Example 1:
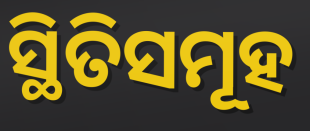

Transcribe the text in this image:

ସ୍ଥିତିସମୂହ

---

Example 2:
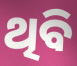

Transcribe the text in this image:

ଥିବି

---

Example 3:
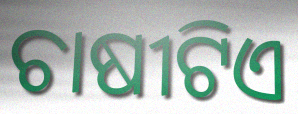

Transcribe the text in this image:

ଚାଷୀଟିଏ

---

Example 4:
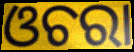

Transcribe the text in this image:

ଓଚରା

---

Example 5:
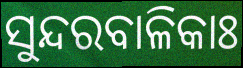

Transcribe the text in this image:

ସୁନ୍ଦରବାଳିକାଃ